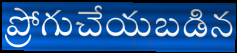
ప్రోగుచేయబడిన